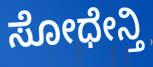
ಸೋಧೇನ್ತಿ